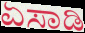
ಏಸಾಡಿ